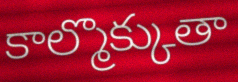
కాల్మొక్కుతా